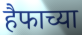
हैफाच्या